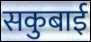
सकुबाई